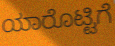
ಯಾರೊಟ್ಟಿಗೆ